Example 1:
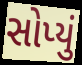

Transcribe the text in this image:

સોપ્યું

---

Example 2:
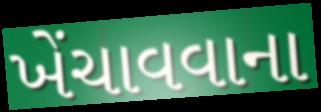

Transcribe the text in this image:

ખેંચાવવાના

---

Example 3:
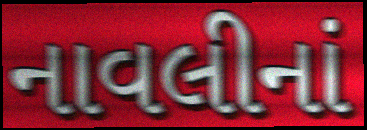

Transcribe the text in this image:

નાવલીનાં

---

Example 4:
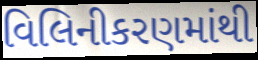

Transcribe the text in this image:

વિલિનીકરણમાંથી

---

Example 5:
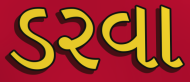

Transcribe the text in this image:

ડરવા